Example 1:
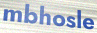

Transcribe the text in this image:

mbhosle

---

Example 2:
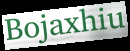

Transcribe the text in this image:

Bojaxhiu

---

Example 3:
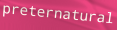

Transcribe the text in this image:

preternatural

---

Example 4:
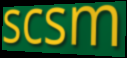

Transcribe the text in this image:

scsm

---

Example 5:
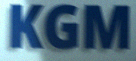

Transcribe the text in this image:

KGM